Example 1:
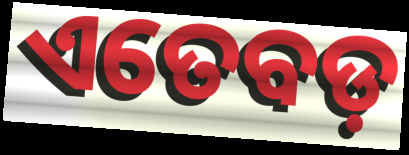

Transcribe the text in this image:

ଏତେବଡ଼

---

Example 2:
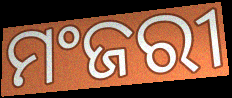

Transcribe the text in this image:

ମଂଜରୀ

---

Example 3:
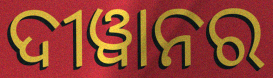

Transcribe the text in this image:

ଦୀୱାନର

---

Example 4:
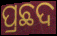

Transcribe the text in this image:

ପ୍ରଛଦ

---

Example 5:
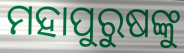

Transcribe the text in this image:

ମହାପୁରୁଷଙ୍କୁ